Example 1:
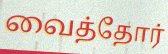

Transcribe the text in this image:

வைத்தோர்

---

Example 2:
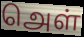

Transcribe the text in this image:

அெள்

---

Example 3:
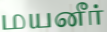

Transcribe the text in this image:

மயனீர்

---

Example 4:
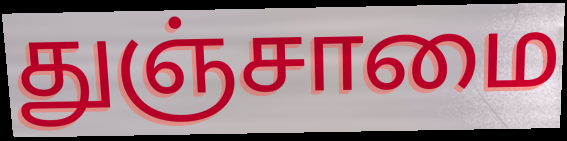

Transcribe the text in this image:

துஞ்சாமை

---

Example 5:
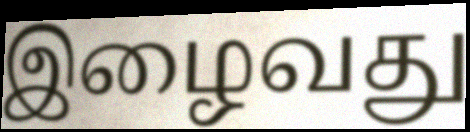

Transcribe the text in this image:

இழைவது